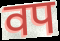
वप